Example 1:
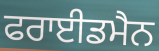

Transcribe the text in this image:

ਫਰਾਈਡਮੈਨ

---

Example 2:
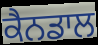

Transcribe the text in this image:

ਕੈਨਡਾਲ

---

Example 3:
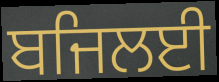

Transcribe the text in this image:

ਬਜਿਲਈ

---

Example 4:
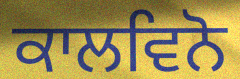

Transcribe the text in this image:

ਕਾਲਵਿਨੋ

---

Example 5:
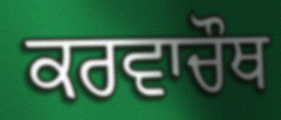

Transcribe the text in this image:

ਕਰਵਾਚੌਥ